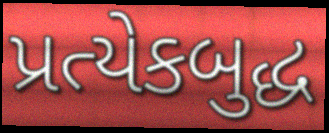
પ્રત્યેકબુદ્ધ